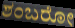
ಶಂಬರೋ